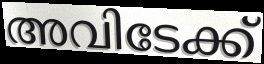
അവിടേക്ക്